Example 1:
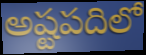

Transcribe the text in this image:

అష్టపదిలో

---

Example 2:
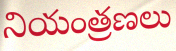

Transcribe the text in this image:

నియంత్రణలు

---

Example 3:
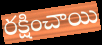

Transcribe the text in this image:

రక్షించాయి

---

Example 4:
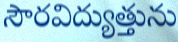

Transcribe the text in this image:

సౌరవిద్యుత్తును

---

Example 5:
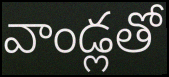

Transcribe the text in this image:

వాండ్లతో